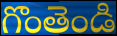
గొంతెండి